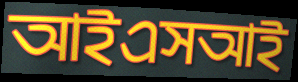
আইএসআই